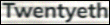
Twentyeth